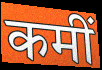
कमीं